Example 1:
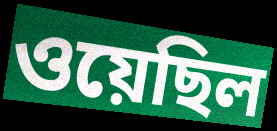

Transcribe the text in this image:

ওয়েছিল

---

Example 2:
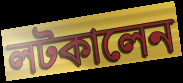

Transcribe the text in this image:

লটকালেন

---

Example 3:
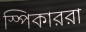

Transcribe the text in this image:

স্পিকাররা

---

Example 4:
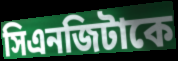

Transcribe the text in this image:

সিএনজিটাকে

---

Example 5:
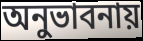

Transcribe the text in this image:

অনুভাবনায়